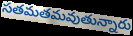
సతమతమవుతున్నారు